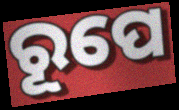
ରୂପେ